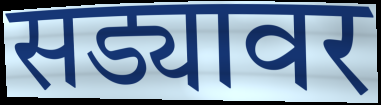
सड्यावर